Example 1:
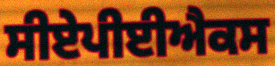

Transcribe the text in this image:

ਸੀਏਪੀਈਐਕਸ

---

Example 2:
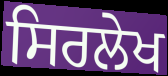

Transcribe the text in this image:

ਸਿਰਲੇਖ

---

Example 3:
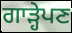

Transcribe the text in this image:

ਗਾੜ੍ਹੇਪਣ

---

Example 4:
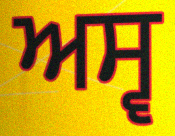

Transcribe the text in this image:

ਅਸ੍ਵ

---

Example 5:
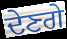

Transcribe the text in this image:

ਦੇਣਗੇ